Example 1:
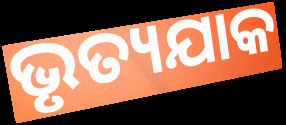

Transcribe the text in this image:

ଭୃତ୍ୟଯାକ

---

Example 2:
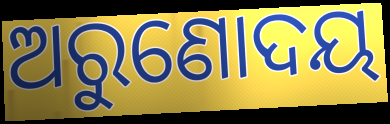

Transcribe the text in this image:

ଅରୁଣୋଦୟ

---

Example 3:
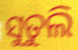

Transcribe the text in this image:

ସୁତୁଲି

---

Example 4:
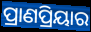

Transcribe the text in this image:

ପ୍ରାଣପ୍ରିୟାର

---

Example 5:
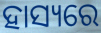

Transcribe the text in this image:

ହାସ୍ୟରେ